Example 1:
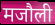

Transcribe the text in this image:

मजौली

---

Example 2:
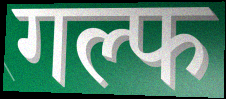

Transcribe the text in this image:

गल्फ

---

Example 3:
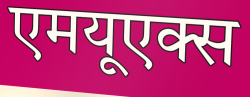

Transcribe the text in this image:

एमयूएक्स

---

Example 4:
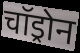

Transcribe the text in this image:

चॉड्रोन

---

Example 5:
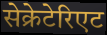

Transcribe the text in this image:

सेक्रेटेरिएट